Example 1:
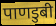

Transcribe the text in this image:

पाणडुबी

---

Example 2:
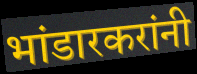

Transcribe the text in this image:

भांडारकरांनी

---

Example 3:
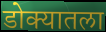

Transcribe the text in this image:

डोक्यातला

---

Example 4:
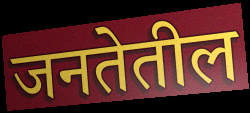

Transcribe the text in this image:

जनतेतील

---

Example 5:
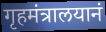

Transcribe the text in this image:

गृहमंत्रालयानं